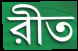
রীত